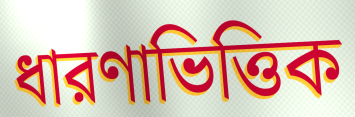
ধারণাভিত্তিক